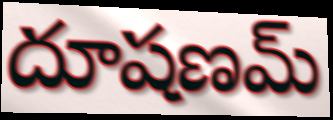
దూషణమ్